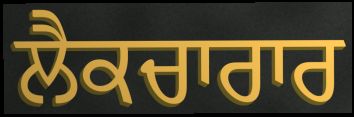
ਲੈਕਚਾਰਾਰ